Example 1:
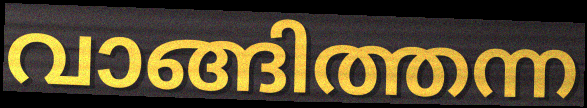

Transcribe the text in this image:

വാങ്ങിത്തന്ന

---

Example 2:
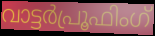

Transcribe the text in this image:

വാട്ടർപ്രൂഫിംഗ്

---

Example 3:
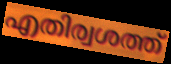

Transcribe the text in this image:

എതിര്വശത്ത്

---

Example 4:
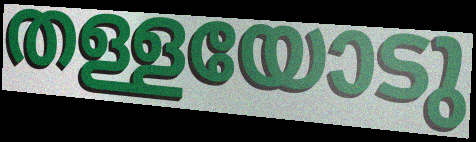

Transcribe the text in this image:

തള്ളയോടു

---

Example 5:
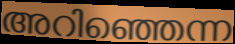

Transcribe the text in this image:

അറിഞ്ഞെന്ന